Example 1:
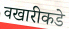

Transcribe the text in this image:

वखारीकडे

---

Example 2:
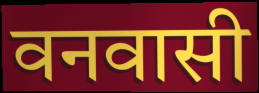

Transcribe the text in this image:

वनवासी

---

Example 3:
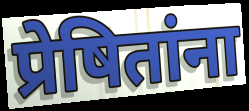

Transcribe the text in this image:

प्रेषितांना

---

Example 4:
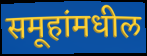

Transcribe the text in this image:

समूहांमधील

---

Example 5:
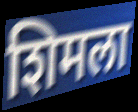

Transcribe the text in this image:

शिमला